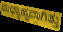
ಮಧ್ಯಾಹ್ನವಾಗಿತ್ತು